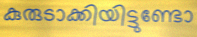
കുരുടാക്കിയിട്ടുണ്ടോ